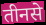
तीनसे